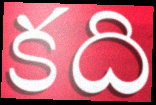
కది